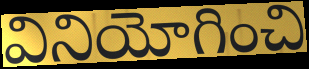
వినియోగించి